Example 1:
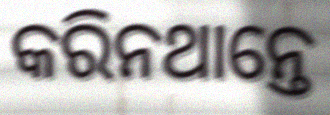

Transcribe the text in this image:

କରିନଥାନ୍ତେ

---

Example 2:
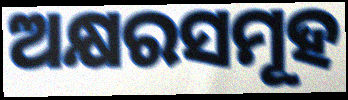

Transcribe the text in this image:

ଅକ୍ଷରସମୂହ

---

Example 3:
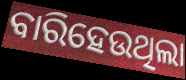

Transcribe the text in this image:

ବାରିହେଉଥିଲା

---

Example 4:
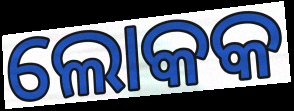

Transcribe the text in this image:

ଲୋକକ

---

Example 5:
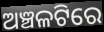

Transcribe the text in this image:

ଅଞ୍ଚଳଟିରେ